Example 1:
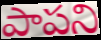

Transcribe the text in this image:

పాపని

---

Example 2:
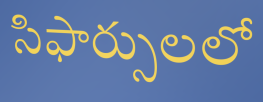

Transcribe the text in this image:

సిఫార్సులలో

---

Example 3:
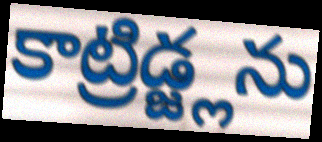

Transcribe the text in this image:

కాట్రిడ్జ్లను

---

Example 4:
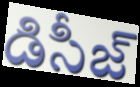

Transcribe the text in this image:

డిసీజ్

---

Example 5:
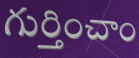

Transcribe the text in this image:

గుర్తించాం